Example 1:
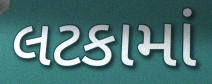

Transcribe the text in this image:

લટકામાં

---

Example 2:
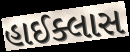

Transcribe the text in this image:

હાઈક્લાસ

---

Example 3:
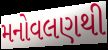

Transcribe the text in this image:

મનોવલણથી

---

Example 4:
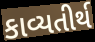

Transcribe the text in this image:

કાવ્યતીર્થ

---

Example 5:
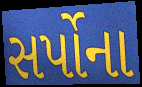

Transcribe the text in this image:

સર્પોના